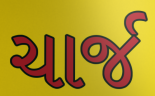
ચાર્જ